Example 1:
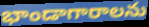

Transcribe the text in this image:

భాండాగారాలను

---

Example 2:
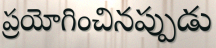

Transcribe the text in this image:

ప్రయోగించినప్పుడు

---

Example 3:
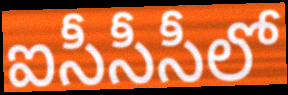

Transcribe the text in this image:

ఐసీసీసీలో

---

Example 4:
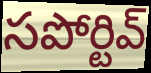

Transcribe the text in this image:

సపోర్టివ్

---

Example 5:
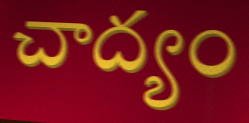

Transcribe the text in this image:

చాద్యం